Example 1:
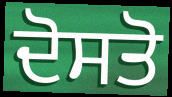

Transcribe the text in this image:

ਦੋਸਤੋ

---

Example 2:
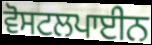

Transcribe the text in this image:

ਵੋਸਟਲਪਾਈਨ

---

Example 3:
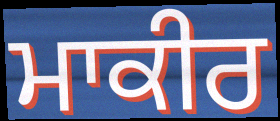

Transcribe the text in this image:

ਮਾਕੀਰ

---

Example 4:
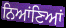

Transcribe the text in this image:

ਨਿਆਂਣਿਆਂ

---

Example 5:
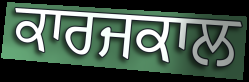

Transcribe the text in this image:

ਕਾਰਜਕਾਲ